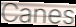
Canes